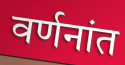
वर्णनांत